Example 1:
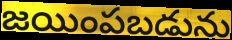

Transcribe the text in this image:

జయింపబడును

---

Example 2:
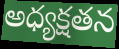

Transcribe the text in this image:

అధ్యక్షతన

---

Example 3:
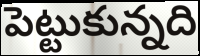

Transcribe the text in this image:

పెట్టుకున్నది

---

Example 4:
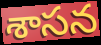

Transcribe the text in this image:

శాసన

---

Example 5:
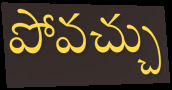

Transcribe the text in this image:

పోవచ్చు